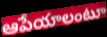
ఆపేయాలంటూ